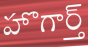
హొగార్త్